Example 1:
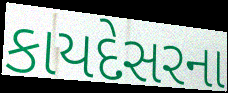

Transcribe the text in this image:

કાયદેસરના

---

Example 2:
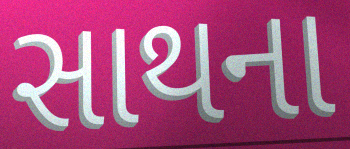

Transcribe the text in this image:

સાથના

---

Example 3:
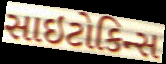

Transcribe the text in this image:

સાઇટોકિન્સ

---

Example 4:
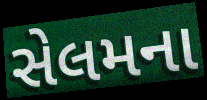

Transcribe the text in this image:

સેલમના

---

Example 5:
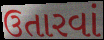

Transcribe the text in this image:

ઉતારવાં